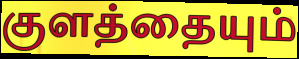
குளத்தையும்